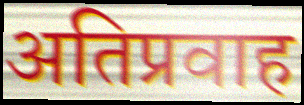
अतिप्रवाह